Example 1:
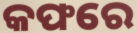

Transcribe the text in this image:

କଫରେ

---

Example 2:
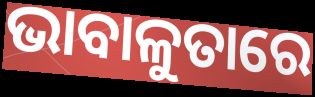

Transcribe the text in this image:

ଭାବାଳୁତାରେ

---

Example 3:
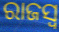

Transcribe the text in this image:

ରାଜସ୍ୱ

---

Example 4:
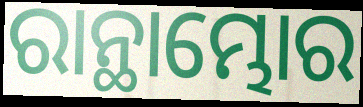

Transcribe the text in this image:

ରାନ୍ଥାମ୍ଭୋର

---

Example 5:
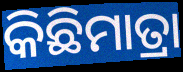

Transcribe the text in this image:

କିଛିମାତ୍ରା